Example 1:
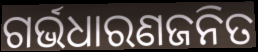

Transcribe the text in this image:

ଗର୍ଭଧାରଣଜନିତ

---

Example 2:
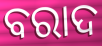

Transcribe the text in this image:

ବରାଦ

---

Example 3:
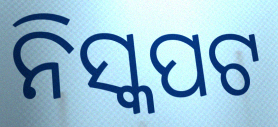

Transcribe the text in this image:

ନିସ୍କପଟ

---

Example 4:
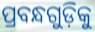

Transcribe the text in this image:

ପ୍ରବନ୍ଧଗୁଡ଼ିକୁ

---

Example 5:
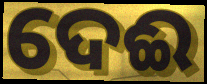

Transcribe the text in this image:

ଦେଈ